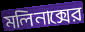
মলিনাক্সের